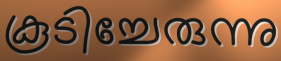
കൂടിച്ചേരുന്നു